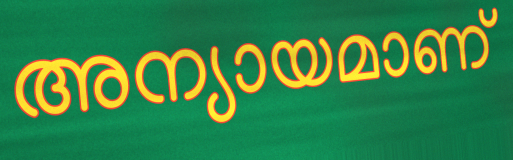
അന്യായമാണ്